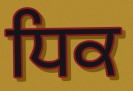
ਧਿਕ